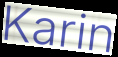
Karin